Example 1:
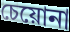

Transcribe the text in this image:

চেয়োনা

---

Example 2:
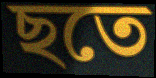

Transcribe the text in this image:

ছতে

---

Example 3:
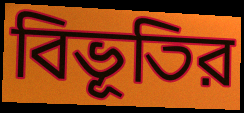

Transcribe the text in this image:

বিভূতির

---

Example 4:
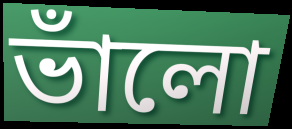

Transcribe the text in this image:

ভাঁলো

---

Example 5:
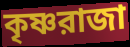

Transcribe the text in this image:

কৃষ্ণরাজা